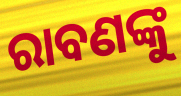
ରାବଣଙ୍କୁ